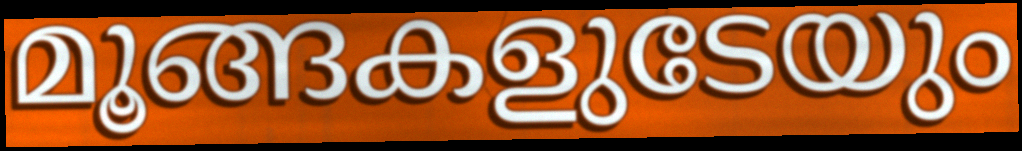
മൂങ്ങകളുടേയും